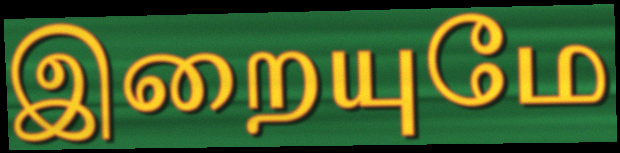
இறையுமே